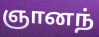
ஞானந்